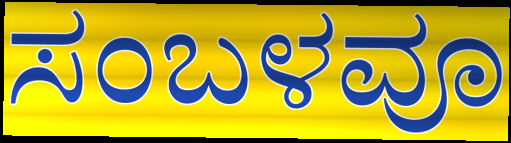
ಸಂಬಳವೂ